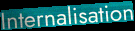
Internalisation